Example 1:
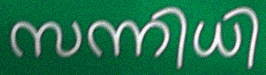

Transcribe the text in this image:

സന്നിധി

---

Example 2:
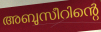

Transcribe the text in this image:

അബുസീറിന്റെ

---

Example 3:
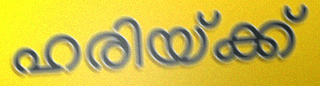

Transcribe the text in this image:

ഹരിയ്‌ക്ക്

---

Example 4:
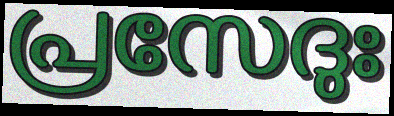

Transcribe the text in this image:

പ്രസേദുഃ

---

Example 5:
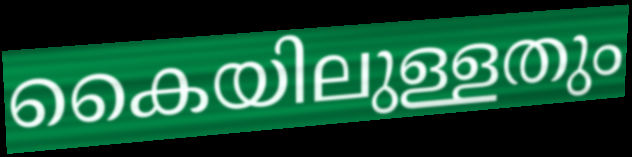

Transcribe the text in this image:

കൈയിലുള്ളതും